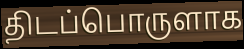
திடப்பொருளாக